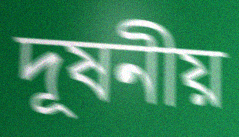
দূষনীয়